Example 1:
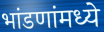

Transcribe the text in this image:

भांडणांमध्ये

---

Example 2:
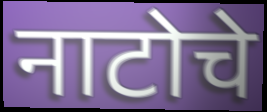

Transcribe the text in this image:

नाटोचे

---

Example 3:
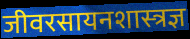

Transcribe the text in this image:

जीवरसायनशास्त्रज्ञ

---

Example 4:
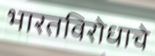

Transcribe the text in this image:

भारतविरोधाचे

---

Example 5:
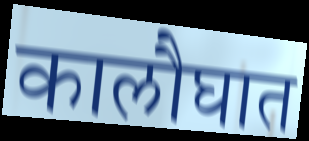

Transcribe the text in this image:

कालौघात